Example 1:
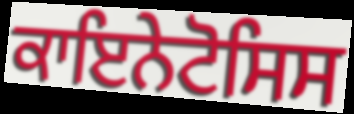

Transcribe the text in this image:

ਕਾਇਨੇਟੋਸਿਸ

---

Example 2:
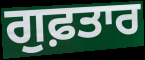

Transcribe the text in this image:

ਗੁਫ਼ਤਾਰ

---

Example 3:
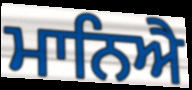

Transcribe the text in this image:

ਮਾਨਿਐ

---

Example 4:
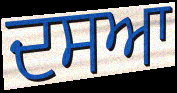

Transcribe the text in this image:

ਦਸਆ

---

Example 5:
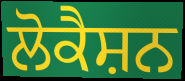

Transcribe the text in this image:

ਲੋਕੈਸ਼ਨ